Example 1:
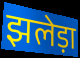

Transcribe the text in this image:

झलेड़ा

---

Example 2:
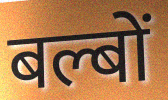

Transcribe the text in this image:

बल्बों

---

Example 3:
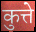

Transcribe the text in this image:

कुत्ते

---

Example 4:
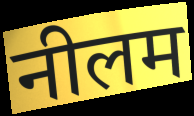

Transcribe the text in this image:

नीलम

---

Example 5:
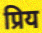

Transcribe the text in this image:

प्रिय